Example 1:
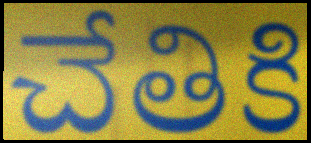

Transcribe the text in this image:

చేతికి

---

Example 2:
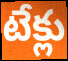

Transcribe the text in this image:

టేక్లు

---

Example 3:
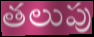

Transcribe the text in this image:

తలుపు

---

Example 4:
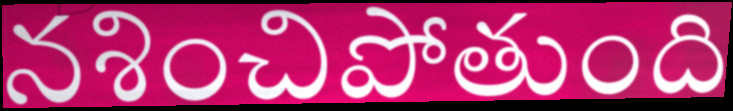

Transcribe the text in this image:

నశించిపోతుంది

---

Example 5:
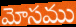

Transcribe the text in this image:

మోసము